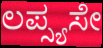
ಲಪ್ಸ್ಯಸೇ